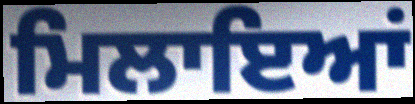
ਮਿਲਾਇਆਂ